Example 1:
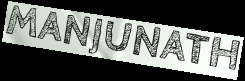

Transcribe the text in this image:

MANJUNATH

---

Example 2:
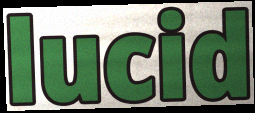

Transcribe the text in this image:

lucid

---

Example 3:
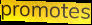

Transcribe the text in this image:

promotes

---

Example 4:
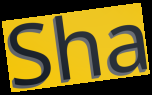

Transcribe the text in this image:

Sha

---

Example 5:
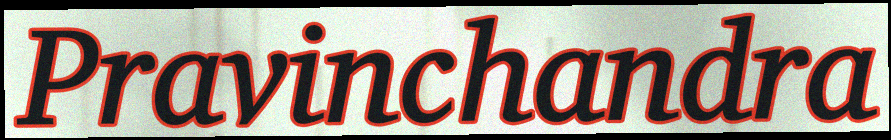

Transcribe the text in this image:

Pravinchandra